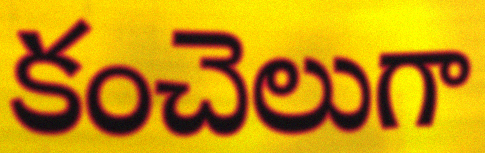
కంచెలుగా